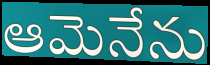
ఆమెనేను